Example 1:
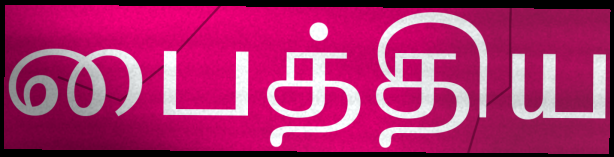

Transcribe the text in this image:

பைத்திய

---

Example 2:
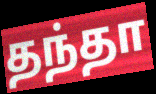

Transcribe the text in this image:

தந்தா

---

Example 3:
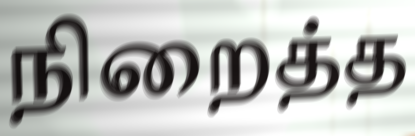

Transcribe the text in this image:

நிறைத்த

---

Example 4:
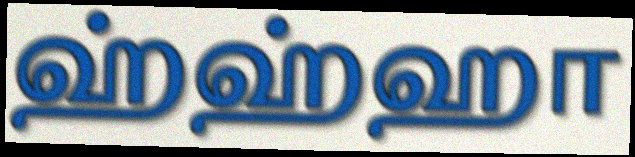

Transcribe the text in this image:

ஹ்ஹ்ஹா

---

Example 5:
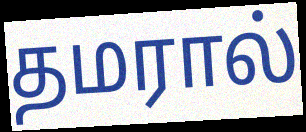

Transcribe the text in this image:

தமரால்